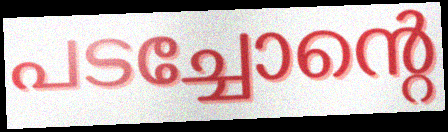
പടച്ചോന്റെ